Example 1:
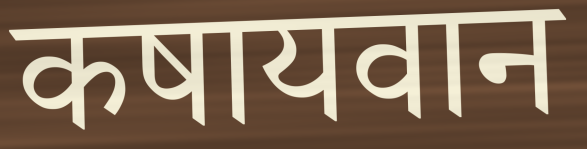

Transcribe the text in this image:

कषायवान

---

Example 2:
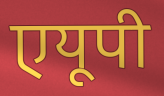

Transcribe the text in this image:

एयूपी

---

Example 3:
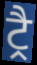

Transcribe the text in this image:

ट्रै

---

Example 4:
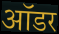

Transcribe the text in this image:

ऑडर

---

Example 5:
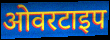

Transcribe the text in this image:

ओवरटाइप